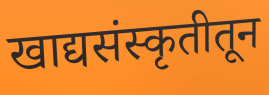
खाद्यसंस्कृतीतून